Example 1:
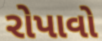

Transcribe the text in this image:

રોપાવો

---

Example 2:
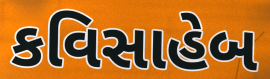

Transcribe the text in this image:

કવિસાહેબ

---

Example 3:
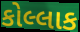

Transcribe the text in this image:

કોલ્લાક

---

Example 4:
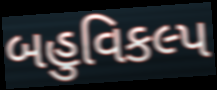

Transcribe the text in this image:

બહુવિકલ્પ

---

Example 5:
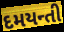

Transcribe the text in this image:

દમયન્તી